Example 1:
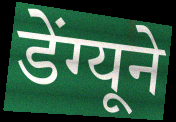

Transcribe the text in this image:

डेंग्यूने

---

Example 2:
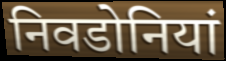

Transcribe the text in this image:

निवडोनियां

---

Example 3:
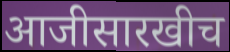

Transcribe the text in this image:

आजीसारखीच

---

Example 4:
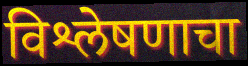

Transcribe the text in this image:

विश्लेषणाचा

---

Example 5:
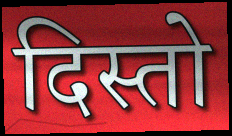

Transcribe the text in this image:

दिस्तो